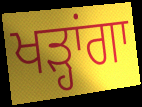
ਖੜ੍ਹਾਂਗਾ